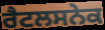
ਰੈਟਲਸਨੇਕ